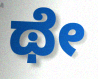
ಥೇ